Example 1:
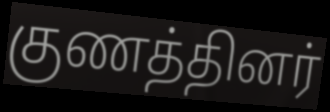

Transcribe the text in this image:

குணத்தினர்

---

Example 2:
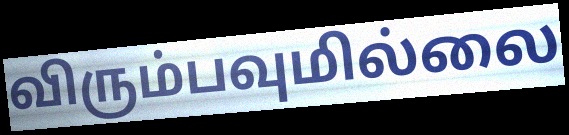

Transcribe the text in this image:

விரும்பவுமில்லை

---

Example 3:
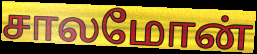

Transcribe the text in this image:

சாலமோன்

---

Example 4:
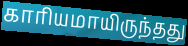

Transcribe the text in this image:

காரியமாயிருந்தது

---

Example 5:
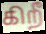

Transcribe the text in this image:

கிறீ